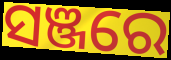
ସଞ୍ଜରେ